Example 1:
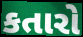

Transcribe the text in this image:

કતારો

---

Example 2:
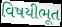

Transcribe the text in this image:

વિષયીભૂત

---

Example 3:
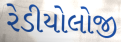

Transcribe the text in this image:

રેડીયોલોજી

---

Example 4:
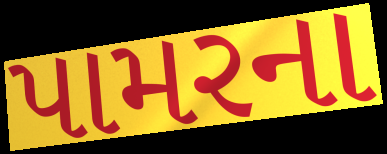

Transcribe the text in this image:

પામરના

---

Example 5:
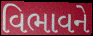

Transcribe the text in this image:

વિભાવને